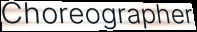
Choreographer